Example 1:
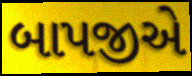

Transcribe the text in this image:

બાપજીએ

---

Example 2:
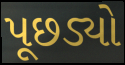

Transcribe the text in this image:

પૂછડ્યો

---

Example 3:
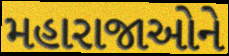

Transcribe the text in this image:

મહારાજાઓને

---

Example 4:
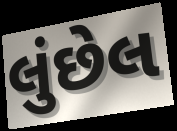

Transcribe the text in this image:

લુંછેલ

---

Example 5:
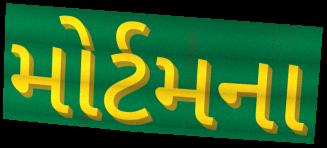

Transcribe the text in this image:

મોર્ટમના